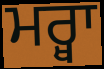
ਮਰ੍ਥਾ